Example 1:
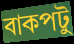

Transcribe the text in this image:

বাকপটু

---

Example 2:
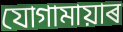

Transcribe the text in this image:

যোগামায়াৰ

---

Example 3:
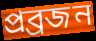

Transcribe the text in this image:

প্ৰব্ৰজন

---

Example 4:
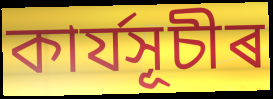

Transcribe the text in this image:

কাৰ্যসূচীৰ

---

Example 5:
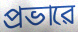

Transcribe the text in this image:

প্ৰভাৱে